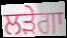
ਲੜੇਗਾ